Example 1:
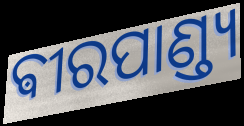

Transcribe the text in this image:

ଵୀରପାଣ୍ଡ୍ୟ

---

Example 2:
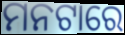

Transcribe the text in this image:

ମନଟାରେ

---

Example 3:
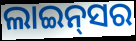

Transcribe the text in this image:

ଲାଇନ୍‍ସର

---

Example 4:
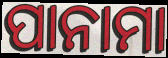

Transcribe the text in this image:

ପାନାମା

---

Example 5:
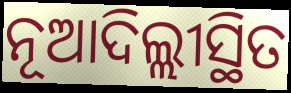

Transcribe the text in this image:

ନୂଆଦିଲ୍ଲୀସ୍ଥିତ